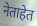
नेताहेत